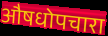
औषधोपचारा